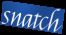
snatch